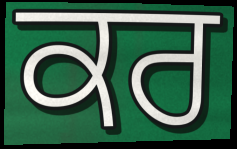
ਕਰ